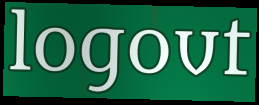
logout